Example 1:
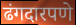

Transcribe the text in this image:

ढंगदारपणे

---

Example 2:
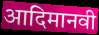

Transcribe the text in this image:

आदिमानवी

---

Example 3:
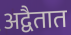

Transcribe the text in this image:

अद्वैतात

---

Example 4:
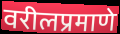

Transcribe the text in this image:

वरीलप्रमाणे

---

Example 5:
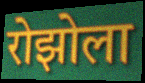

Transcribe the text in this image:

रोझोला